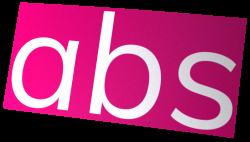
abs